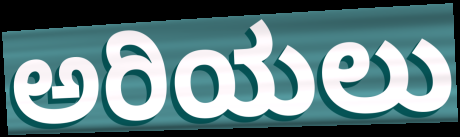
ಅರಿಯಲು